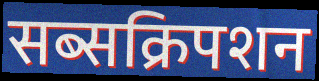
सब्सक्रिपशन